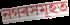
নগৰসমূহত